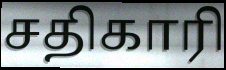
சதிகாரி